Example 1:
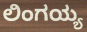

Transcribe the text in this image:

ಲಿಂಗಯ್ಯ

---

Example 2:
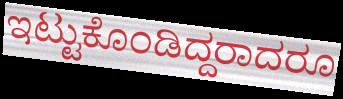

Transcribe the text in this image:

ಇಟ್ಟುಕೊಂಡಿದ್ದರಾದರೂ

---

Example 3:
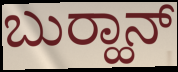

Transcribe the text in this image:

ಬುರ‍್ಹಾನ್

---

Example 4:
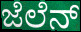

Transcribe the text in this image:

ಜೆಲೆನ್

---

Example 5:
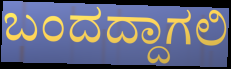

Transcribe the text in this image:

ಬಂದದ್ದಾಗಲಿ